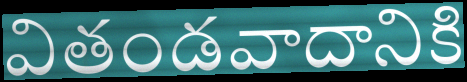
వితండవాదానికి